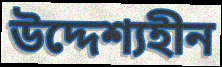
উদ্দেশ্যহীন